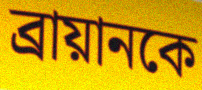
ব্রায়ানকে